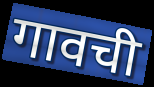
गावची